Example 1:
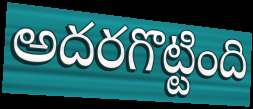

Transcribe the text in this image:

అదరగొట్టింది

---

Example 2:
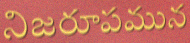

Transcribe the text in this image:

నిజరూపమున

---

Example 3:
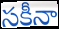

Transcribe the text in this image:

సకీనా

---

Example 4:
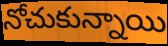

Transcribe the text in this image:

నోచుకున్నాయి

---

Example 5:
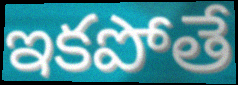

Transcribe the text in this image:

ఇకపోతే